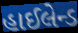
હાઈલેન્ડ